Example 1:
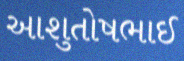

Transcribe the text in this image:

આશુતોષભાઈ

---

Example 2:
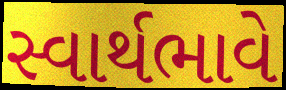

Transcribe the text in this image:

સ્વાર્થભાવે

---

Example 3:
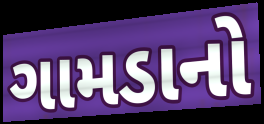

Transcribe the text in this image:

ગામડાનો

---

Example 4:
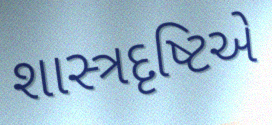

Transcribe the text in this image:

શાસ્ત્રદૃષ્ટિએ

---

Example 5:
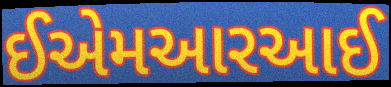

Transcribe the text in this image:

ઈએમઆરઆઈ